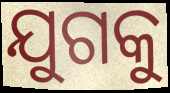
ଯୁଗକୁ